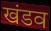
खंडव